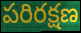
పరిరక్షణ